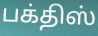
பக்திஸ்